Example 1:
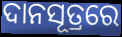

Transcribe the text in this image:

ଦାନସୂତ୍ରରେ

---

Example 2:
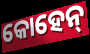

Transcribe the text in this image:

କୋହେନ୍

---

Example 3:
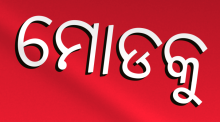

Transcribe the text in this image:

ମୋଡକୁ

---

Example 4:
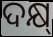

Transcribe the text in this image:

ଦକ୍ଷ୍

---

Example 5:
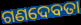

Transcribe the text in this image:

ଗଣଦେବତା